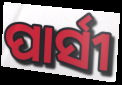
ପାର୍ସୀ